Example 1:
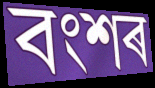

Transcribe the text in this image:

বংশৰ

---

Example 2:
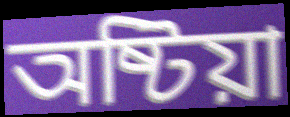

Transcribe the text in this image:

অষ্টিয়া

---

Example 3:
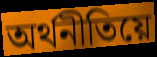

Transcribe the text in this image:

অৰ্থনীতিয়ে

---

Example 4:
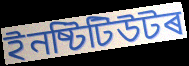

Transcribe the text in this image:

ইনষ্টিটিউটৰ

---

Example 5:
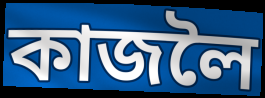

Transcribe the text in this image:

কাজলৈ